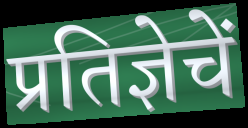
प्रतिज्ञेचें